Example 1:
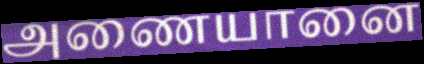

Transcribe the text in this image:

அணையானை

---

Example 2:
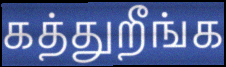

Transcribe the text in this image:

கத்துறீங்க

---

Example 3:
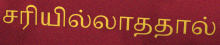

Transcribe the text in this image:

சரியில்லாததால்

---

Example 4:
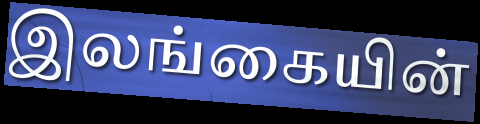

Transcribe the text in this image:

இலங்கையின்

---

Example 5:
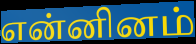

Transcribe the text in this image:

என்னினம்